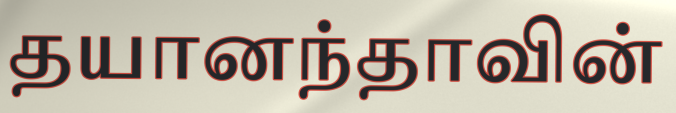
தயானந்தாவின்